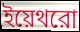
ইয়েথরো